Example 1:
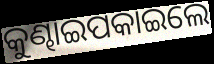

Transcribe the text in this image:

କୁଣ୍ଢାଇପକାଇଲେ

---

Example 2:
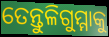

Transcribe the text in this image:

ତେନ୍ତୁଳିଗୁମ୍ମାକୁ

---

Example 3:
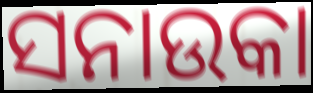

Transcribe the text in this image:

ସନାଉକା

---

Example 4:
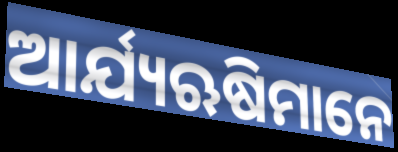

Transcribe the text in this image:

ଆର୍ଯ୍ୟଋଷିମାନେ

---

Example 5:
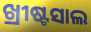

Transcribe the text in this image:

ଖ୍ରୀଷ୍ଟସାଲ